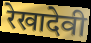
रेखादेवी